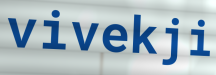
vivekji